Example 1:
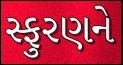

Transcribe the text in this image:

સ્ફુરણને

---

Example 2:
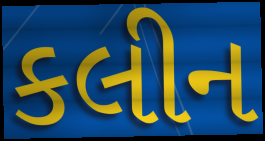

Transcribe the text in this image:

કલીન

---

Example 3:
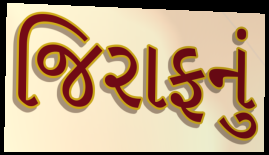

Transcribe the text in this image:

જિરાફનું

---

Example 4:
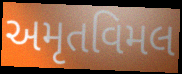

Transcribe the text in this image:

અમૃતવિમલ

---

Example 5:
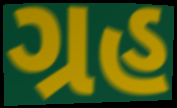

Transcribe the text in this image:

ગ્રહ